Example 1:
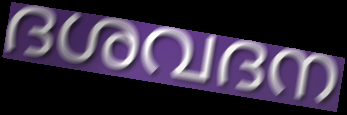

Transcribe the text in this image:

ദശവദന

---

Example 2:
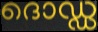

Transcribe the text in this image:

ദൊഡ്ഡ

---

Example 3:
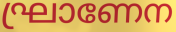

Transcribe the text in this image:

ഘ്രാണേന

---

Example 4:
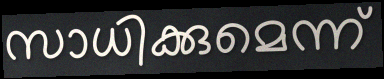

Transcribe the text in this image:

സാധിക്കുമെന്ന്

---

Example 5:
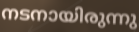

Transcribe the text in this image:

നടനായിരുന്നു